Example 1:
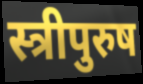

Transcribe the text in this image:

स्त्रीपुरुष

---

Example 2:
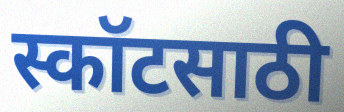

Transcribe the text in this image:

स्कॉटसाठी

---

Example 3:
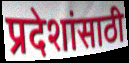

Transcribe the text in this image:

प्रदेशांसाठी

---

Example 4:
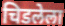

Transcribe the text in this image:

चिडलेला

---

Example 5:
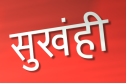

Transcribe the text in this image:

सुखंही